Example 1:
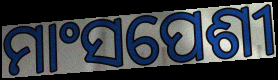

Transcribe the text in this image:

ମାଂସପେଶୀ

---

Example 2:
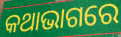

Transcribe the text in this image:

କଥାଭାଗରେ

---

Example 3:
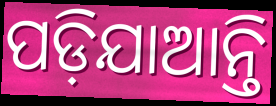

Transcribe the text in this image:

ପଡ଼ିଯାଆନ୍ତି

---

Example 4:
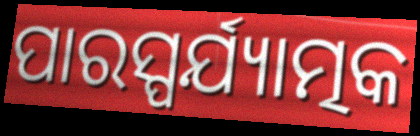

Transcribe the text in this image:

ପାରସ୍ପର୍ଯ୍ୟାତ୍ମକ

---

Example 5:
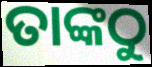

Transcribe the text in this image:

ତାଙ୍କଠୁ